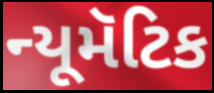
ન્યૂમૅટિક